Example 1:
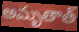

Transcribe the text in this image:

అమృతాత్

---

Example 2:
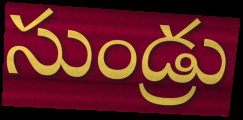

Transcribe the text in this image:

సుండ్రు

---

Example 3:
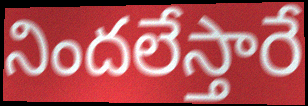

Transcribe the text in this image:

నిందలేస్తారే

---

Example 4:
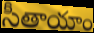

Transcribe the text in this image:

సీతాయాం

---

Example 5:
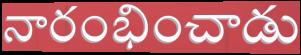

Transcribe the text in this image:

నారంభించాడు